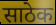
साठेक